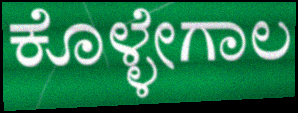
ಕೊಳ್ಳೇಗಾಲ